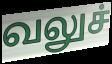
வலுச்